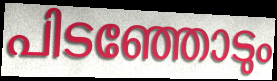
പിടഞ്ഞോടും